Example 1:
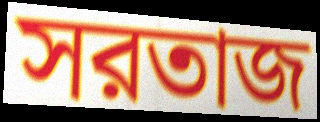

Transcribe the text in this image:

সরতাজ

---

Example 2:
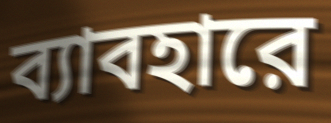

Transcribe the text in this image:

ব্যাবহারে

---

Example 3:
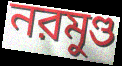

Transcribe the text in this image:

নরমুণ্ড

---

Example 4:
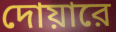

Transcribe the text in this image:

দোয়ারে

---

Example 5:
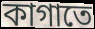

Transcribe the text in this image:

কাগাতে